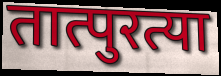
तात्पुरत्या